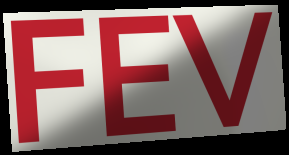
FEV